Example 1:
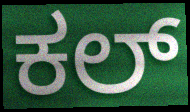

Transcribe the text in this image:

ಕಲ್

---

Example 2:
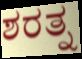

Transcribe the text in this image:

ಶರತ್ನ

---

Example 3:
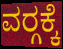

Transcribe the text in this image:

ವರ‍್ಗಕ್ಕೆ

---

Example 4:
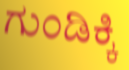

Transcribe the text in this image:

ಗುಂಡಿಕ್ಕಿ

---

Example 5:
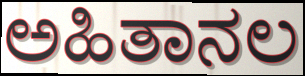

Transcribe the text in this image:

ಅಹಿತಾನಲ